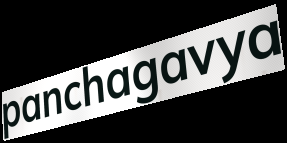
panchagavya